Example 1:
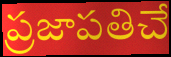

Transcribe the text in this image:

ప్రజాపతిచే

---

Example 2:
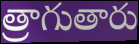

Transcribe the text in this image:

త్రాగుతారు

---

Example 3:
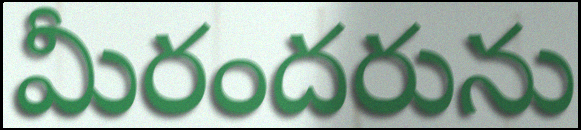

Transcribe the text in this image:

మీరందరును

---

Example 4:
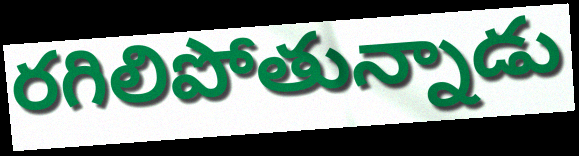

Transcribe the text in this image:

రగిలిపోతున్నాడు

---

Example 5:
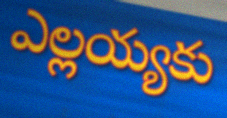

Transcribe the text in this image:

ఎల్లయ్యకు